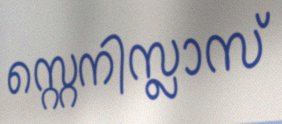
സ്റ്റെനിസ്ലാസ്